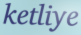
ketliye